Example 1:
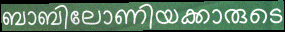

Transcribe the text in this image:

ബാബിലോണിയക്കാരുടെ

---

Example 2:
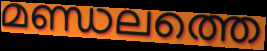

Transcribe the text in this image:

മണ്ഡലത്തെ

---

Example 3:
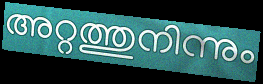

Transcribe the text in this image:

അറ്റത്തുനിന്നും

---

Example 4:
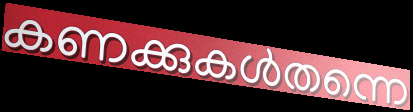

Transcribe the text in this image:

കണക്കുകൾതന്നെ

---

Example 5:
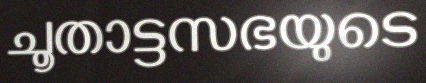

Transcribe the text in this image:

ചൂതാട്ടസഭയുടെ